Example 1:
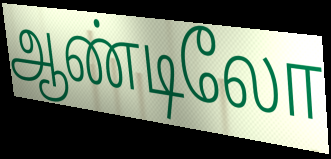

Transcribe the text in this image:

ஆண்டிலோ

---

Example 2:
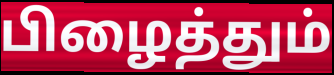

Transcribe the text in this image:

பிழைத்தும்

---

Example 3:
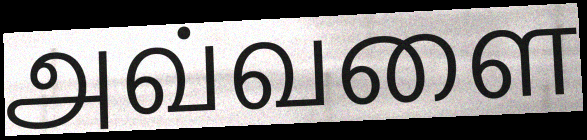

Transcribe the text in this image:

அவ்வளை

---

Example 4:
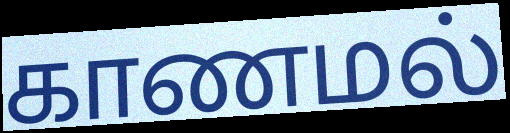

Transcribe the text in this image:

காணமல்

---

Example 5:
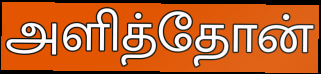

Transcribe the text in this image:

அளித்தோன்